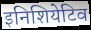
इनिशियेटिव